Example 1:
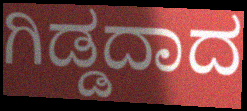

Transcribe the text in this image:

ಗಿಡ್ಡದಾದ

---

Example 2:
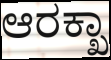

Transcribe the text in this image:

ಆರಕ್ಖಾ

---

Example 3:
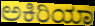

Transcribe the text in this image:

ಅಕಿರಿಯಾ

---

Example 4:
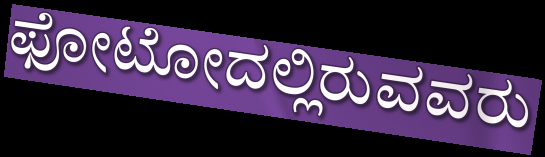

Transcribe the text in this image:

ಫೋಟೋದಲ್ಲಿರುವವರು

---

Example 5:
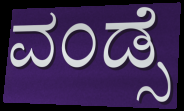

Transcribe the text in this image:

ವಂಡ್ಸೆ